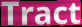
Tract